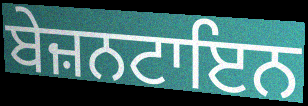
ਬੇਜ਼ਨਟਾਇਨ